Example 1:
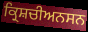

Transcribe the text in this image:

ਕ੍ਰਿਸ਼ਚੀਅਨਸਨ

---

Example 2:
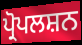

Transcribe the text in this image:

ਪ੍ਰੋਪਲਸ਼ਨ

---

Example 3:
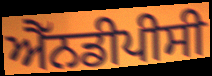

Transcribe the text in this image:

ਐੱਨਡੀਪੀਸੀ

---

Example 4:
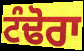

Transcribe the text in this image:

ਟੰਢੋਰਾ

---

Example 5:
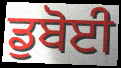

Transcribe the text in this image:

ਡੁਬੋਈ